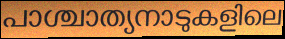
പാശ്ചാത്യനാടുകളിലെ